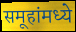
समूहांमध्ये